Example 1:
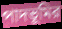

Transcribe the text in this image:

পাদভূমির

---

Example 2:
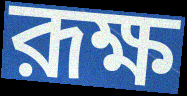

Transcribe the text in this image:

রূক্ষ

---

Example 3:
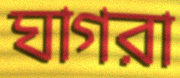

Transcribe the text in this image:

ঘাগরা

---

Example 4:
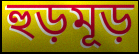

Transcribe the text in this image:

হুড়মূড়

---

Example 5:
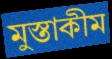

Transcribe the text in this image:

মুস্তাকীম